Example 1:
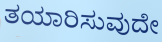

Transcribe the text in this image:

ತಯಾರಿಸುವುದೇ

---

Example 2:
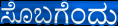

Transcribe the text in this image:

ಸೊಬಗೆಂದು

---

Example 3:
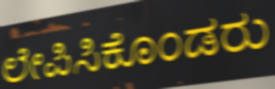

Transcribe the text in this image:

ಲೇಪಿಸಿಕೊಂಡರು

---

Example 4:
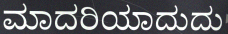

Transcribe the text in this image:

ಮಾದರಿಯಾದುದು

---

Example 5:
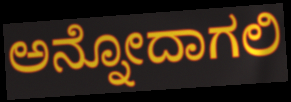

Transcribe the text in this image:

ಅನ್ನೋದಾಗಲಿ